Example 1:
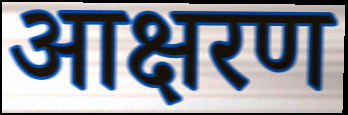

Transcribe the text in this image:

आक्षरण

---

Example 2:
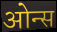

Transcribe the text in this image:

ओन्स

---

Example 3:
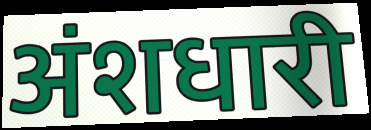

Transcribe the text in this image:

अंशधारी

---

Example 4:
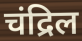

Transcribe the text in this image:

चंद्रिल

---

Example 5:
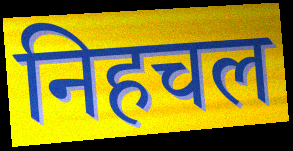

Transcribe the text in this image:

निहचल